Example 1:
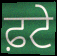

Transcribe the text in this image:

ਫ਼ਟੇ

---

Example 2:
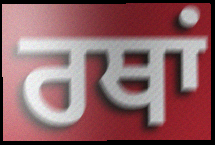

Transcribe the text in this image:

ਰਥਾਂ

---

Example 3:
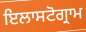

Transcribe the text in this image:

ਇਲਾਸਟੋਗ੍ਰਾਮ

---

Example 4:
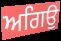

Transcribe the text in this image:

ਅਗਿਉ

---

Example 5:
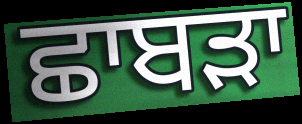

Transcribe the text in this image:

ਛਾਬੜਾ